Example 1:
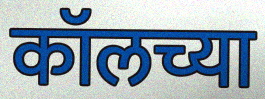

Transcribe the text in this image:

कॉलच्या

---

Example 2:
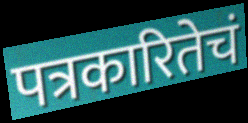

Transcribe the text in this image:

पत्रकारितेचं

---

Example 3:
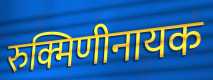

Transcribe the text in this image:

रुक्मिणीनायक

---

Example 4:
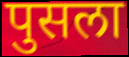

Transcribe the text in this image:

पुसला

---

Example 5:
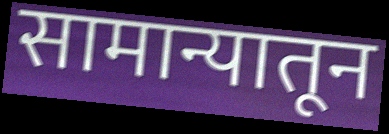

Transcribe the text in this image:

सामान्यातून